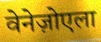
वेनेज़ोएला